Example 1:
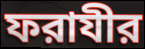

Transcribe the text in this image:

ফরাযীর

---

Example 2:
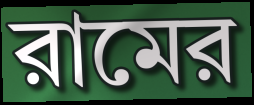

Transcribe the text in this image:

রামের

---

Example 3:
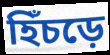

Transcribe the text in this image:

হিঁচড়ে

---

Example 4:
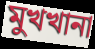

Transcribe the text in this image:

মুখখানা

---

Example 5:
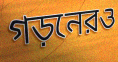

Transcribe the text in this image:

গড়নেরও